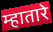
म्हातारे